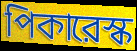
পিকারেস্ক